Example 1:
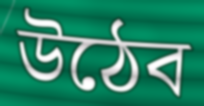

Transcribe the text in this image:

উঠেব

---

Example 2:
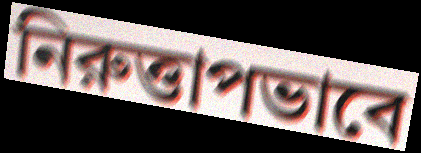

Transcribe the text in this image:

নিরুত্তাপভাবে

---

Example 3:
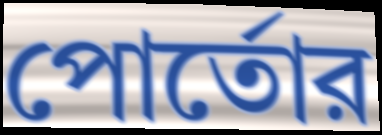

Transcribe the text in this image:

পোর্তোর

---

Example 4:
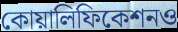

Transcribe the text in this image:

কোয়ালিফিকেশনও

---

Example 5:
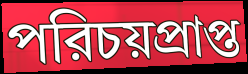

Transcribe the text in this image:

পরিচয়প্রাপ্ত